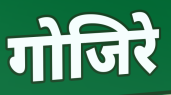
गोजिरे